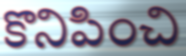
కొనిపించి